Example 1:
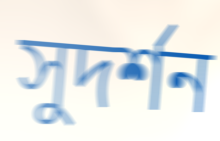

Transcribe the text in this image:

সুদর্শন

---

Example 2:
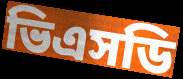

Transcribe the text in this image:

ভিএসডি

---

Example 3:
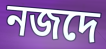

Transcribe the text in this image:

নজদে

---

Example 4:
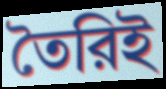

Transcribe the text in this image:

তৈরিই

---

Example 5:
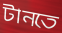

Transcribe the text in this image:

টানতে